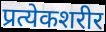
प्रत्येकशरीर